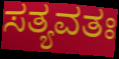
ಸತ್ಯವತಃ